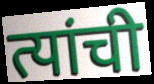
त्‍यांची